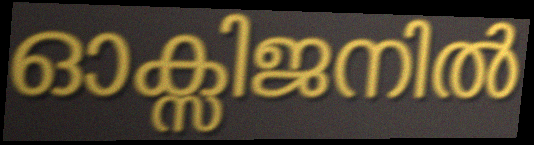
ഓക്സിജനിൽ